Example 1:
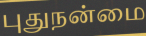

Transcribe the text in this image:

புதுநன்மை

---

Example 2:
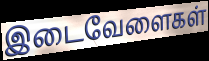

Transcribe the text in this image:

இடைவேளைகள்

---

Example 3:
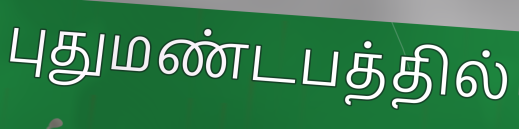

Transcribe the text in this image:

புதுமண்டபத்தில்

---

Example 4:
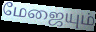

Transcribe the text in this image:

மேஜையும்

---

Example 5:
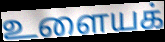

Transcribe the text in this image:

உளையக்